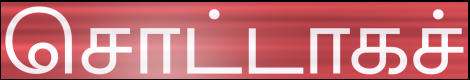
சொட்டாகச்